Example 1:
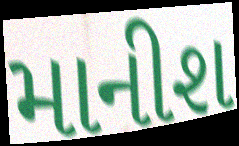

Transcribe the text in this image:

માનીશ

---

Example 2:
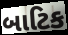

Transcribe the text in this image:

બાટિક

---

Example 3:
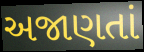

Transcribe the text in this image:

અજાણતાં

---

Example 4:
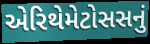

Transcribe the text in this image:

એરિથેમેટોસસનું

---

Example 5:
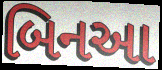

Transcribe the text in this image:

બિનઆ